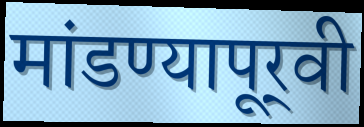
मांडण्यापूर्वी